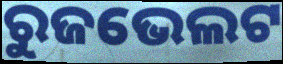
ରୁଜଭେଲଟ